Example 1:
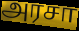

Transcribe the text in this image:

அரசா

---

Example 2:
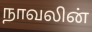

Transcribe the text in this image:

நாவலின்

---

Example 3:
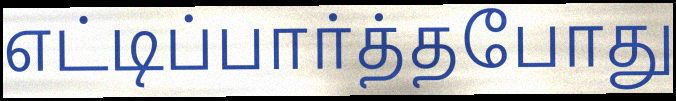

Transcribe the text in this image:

எட்டிப்பார்த்தபோது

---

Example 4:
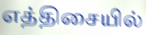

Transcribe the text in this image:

எத்திசையில்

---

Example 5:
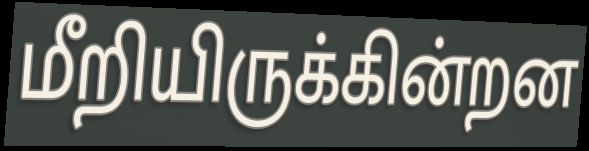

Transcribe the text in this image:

மீறியிருக்கின்றன